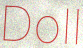
Doll